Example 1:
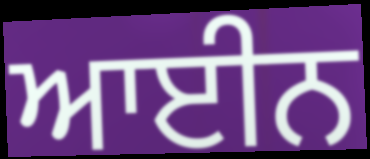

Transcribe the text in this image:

ਆਈਨ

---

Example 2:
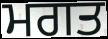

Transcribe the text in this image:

ਮਗਤ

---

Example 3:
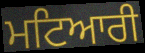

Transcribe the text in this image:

ਮਟਿਆਰੀ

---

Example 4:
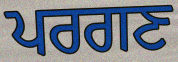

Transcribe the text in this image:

ਪਰਗਣ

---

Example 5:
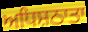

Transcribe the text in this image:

ਅਧਿਸ਼ਠਾਤਾ